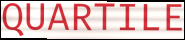
QUARTILE